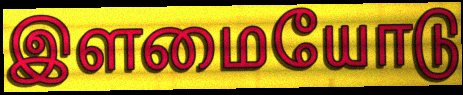
இளமையோடு